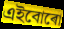
এইবোৰো